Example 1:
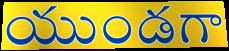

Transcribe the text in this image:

యుండగా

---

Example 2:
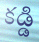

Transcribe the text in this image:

కడ్డి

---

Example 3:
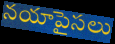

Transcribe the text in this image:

నయాపైసలు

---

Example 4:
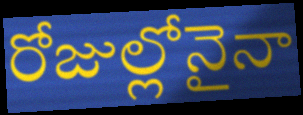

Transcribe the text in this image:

రోజుల్లోనైనా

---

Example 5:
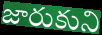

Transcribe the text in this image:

జారుకుని